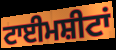
ਟਾਈਮਸ਼ੀਟਾਂ